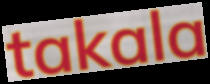
takala